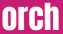
orch